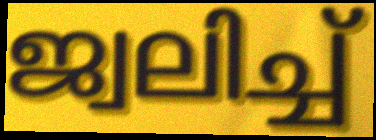
ജ്വലിച്ച്